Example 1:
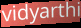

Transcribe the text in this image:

vidyarthi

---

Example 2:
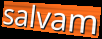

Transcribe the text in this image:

salvam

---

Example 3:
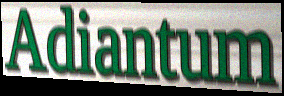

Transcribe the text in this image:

Adiantum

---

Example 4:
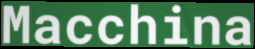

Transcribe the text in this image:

Macchina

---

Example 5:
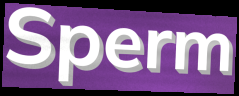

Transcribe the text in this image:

Sperm